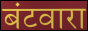
बंटवारा